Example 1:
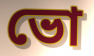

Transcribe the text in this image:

ভো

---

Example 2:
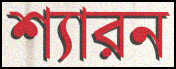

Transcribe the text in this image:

শ্যারন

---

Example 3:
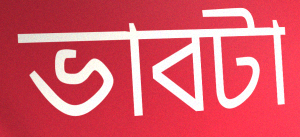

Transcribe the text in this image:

ভাবটা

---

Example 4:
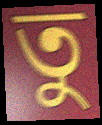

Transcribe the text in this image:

তু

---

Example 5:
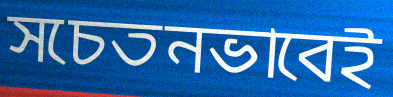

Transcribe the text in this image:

সচেতনভাবেই